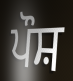
ਪੌਸ਼